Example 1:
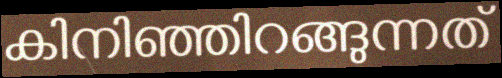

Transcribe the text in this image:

കിനിഞ്ഞിറങ്ങുന്നത്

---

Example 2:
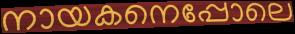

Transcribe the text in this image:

നായകനെപ്പോലെ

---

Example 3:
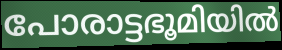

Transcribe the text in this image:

പോരാട്ടഭൂമിയിൽ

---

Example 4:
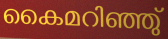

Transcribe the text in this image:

കൈമറിഞ്ഞു്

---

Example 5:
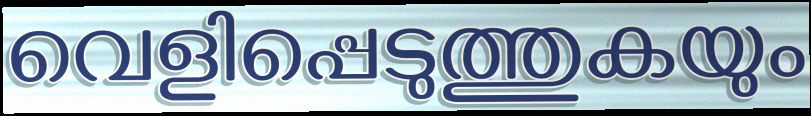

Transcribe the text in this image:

വെളിപ്പെടുത്തുകയും